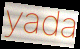
yada